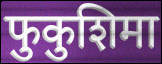
फुकुशिमा